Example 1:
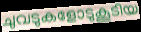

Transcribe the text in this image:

ചുവടുകളോടുകൂടിയ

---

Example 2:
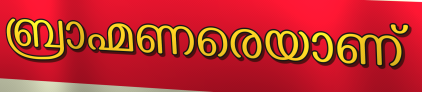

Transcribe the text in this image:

ബ്രാഹ്മണരെയാണ്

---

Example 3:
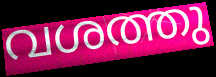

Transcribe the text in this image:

വശത്തു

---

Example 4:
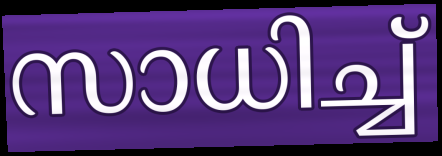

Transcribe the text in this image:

സാധിച്ച്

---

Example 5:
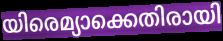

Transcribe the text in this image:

യിരെമ്യാക്കെതിരായി